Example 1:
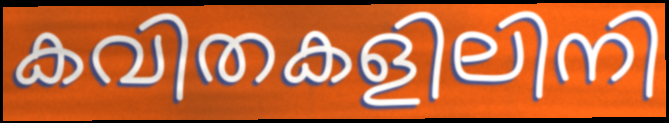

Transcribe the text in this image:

കവിതകളിലിനി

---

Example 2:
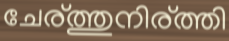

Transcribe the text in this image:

ചേര്ത്തുനിര്ത്തി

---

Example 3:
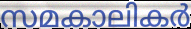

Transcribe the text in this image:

സമകാലികർ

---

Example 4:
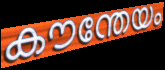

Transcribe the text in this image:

കൗന്തേയം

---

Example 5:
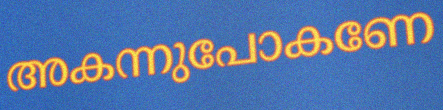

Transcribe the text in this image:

അകന്നുപോകണേ